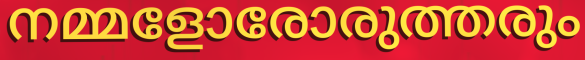
നമ്മളോരോരുത്തരും